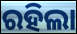
ରହିଲା